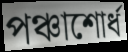
পঞ্চাশোর্ধ